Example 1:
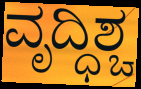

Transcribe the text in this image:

ವೃದ್ಧಿಶ್ಚ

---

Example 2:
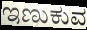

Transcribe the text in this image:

ಇಣುಕುವ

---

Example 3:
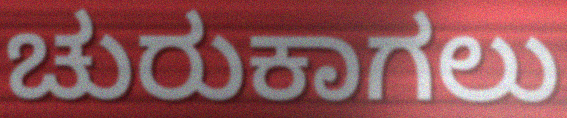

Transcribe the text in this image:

ಚುರುಕಾಗಲು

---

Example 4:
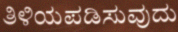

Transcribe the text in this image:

ತಿಳಿಯಪಡಿಸುವುದು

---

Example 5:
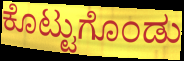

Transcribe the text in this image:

ಕೊಟ್ಟುಗೊಂಡು